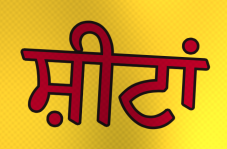
ਸ਼ੀਟਾਂ